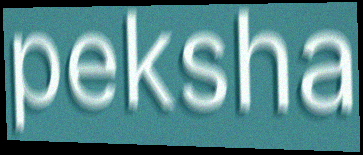
peksha